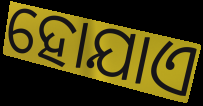
ହୋଯାଏ